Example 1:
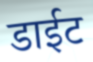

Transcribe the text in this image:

डाईट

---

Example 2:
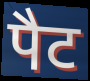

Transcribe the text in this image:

पैट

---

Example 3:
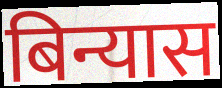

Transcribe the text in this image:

बिन्यास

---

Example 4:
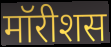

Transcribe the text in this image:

मॉरीशस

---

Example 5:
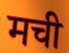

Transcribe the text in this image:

मची